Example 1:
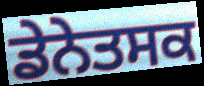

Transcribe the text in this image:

ਡੇਨੇਤਸਕ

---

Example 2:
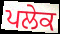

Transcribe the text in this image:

ਪਲੇਕ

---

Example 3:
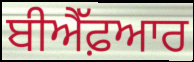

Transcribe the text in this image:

ਬੀਐੱਫ਼ਆਰ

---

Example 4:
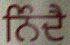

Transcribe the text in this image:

ਨਿੰਦੈ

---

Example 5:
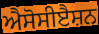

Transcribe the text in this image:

ਐਸੋਸੀੲੈਸ਼ਨ